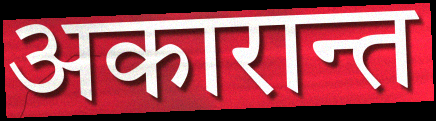
अकारान्त